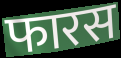
फारस